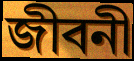
জীবনী